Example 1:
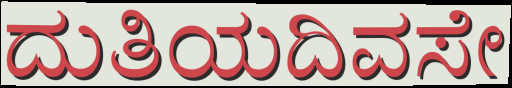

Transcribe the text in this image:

ದುತಿಯದಿವಸೇ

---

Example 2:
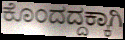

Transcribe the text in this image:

ಕೊಂದದ್ದಕ್ಕಾಗಿ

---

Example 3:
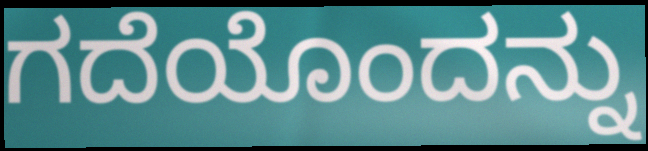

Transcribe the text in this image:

ಗದೆಯೊಂದನ್ನು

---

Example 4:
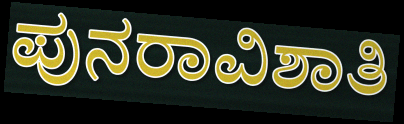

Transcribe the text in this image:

ಪುನರಾವಿಶಾತಿ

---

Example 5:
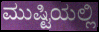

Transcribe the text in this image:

ಮುಷ್ಟಿಯಲ್ಲಿ